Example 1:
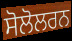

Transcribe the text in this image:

ਸੋਲੋਲਰਨ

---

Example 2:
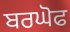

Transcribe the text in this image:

ਬਰਘੋਫ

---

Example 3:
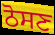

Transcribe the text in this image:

ਠੋਸਣ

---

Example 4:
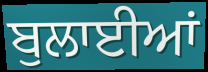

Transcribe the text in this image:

ਬੁਲਾਈਆਂ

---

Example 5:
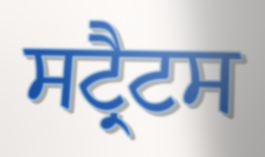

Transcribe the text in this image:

ਸਟ੍ਰੈਟਸ